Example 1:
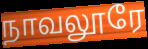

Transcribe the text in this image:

நாவலூரே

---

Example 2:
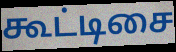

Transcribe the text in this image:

கூட்டிசை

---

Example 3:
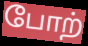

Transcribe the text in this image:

போற்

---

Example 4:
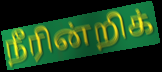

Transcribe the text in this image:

நீரின்றிக்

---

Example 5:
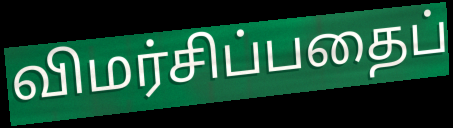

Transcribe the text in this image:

விமர்சிப்பதைப்